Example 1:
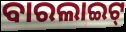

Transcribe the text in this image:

ବାରଲାଇଟ୍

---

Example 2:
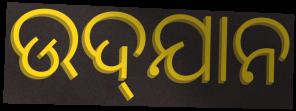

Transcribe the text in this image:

ଉଦ୍‌ଯାନ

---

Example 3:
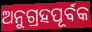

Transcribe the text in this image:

ଅନୁଗ୍ରହପୂର୍ବକ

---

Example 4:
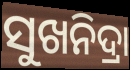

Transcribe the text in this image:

ସୁଖନିଦ୍ରା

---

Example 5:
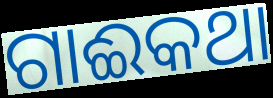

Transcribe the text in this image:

ଗାଈକଥା